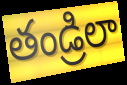
తండ్రిలా